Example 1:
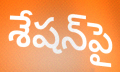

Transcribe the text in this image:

శేషన్‌పై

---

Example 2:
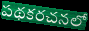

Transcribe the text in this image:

పథకరచనలో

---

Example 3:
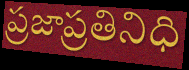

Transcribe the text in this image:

ప్రజాప్రతినిధి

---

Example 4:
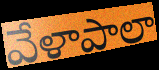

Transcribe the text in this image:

వేళాపాలా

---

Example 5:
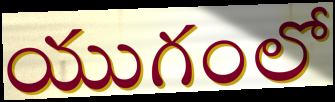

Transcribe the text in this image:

యుగంలో